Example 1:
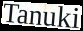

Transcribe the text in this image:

Tanuki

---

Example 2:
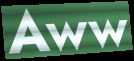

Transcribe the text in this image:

Aww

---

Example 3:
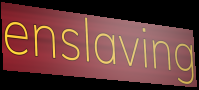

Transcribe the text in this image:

enslaving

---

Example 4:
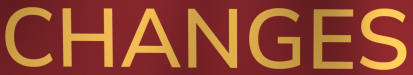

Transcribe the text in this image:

CHANGES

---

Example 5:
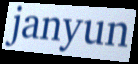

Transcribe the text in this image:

janyun